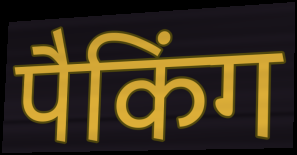
पैकिंग